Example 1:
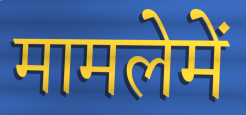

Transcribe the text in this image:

मामलेमें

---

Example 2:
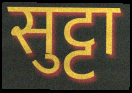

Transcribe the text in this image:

सुट्टा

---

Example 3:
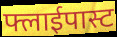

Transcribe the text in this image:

फ्लाईपास्ट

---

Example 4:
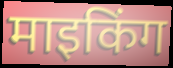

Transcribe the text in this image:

माइकिंग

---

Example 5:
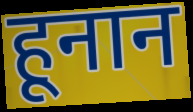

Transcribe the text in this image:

हूनान